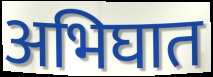
अभिघात